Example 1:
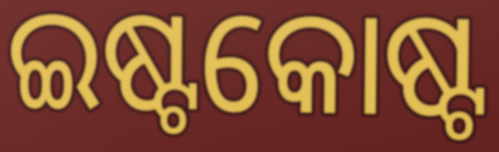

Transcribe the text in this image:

ଇଷ୍ଟକୋଷ୍ଟ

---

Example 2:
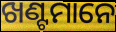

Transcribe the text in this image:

ଖଣ୍ଟମାନେ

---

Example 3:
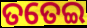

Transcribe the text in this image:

ତତେଇ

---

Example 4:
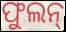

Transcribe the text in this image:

ଫୁଲନ୍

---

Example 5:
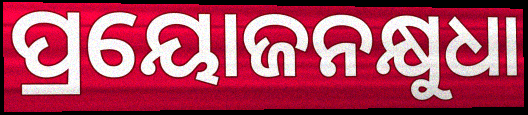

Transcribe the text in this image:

ପ୍ରୟୋଜନକ୍ଷୁଧା